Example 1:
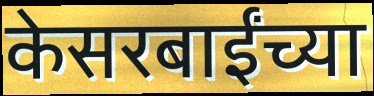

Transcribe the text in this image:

केसरबाईंच्या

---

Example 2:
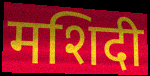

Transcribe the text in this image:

मशिदी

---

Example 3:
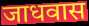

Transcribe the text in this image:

जाधवास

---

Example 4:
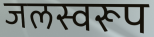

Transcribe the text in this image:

जलस्वरूप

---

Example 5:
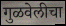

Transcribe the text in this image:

गुळवेलीचा